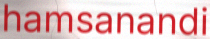
hamsanandi